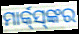
ମାର୍କ୍‌ସ୍‌ଙ୍କର